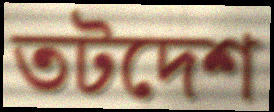
তটদেশ